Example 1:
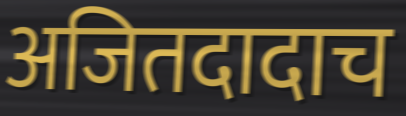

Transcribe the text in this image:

अजितदादाच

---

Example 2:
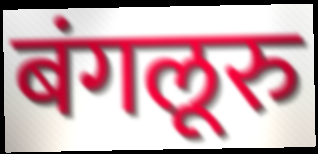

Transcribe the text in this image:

बंगलूरु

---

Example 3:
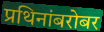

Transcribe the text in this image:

प्रथिनांबरोबर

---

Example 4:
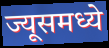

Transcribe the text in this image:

ज्यूसमध्ये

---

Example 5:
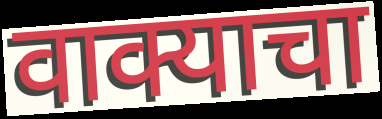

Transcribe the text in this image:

वाक्याचा